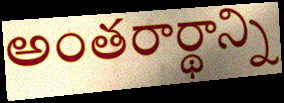
అంతరార్థాన్ని